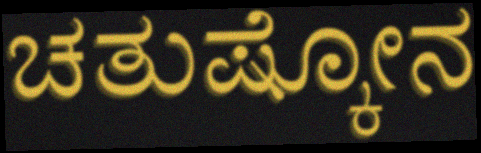
ಚತುಷ್ಕೋನ